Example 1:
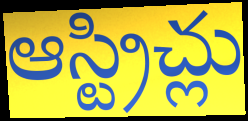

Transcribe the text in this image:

ఆస్ట్రిచ్లు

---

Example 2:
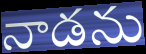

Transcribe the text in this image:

నాడను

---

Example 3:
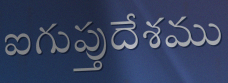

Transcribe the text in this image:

ఐగుప్తుదేశము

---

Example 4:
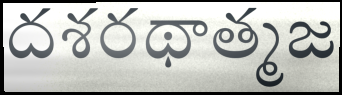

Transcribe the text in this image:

దశరథాత్మజ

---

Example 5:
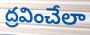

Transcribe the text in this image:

ద్రవించేలా